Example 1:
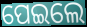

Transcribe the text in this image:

ପେଇଲେ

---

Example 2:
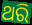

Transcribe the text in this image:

ଥରି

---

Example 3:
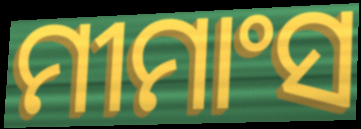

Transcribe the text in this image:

ମୀମାଂସ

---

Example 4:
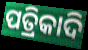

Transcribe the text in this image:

ପତ୍ରିକାଦି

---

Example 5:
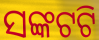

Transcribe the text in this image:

ସଙ୍କଟଟି